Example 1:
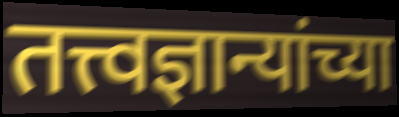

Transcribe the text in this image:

तत्त्वज्ञान्यांच्या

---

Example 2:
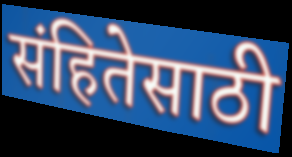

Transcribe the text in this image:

संहितेसाठी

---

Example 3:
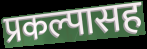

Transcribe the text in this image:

प्रकल्पासह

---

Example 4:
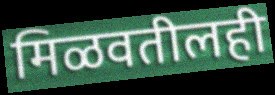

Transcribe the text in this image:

मिळवतीलही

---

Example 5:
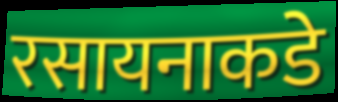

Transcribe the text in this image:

रसायनाकडे